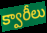
క్వారీలు